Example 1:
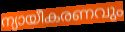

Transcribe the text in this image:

ന്യായീകരണവും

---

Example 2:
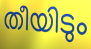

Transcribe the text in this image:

തീയിടും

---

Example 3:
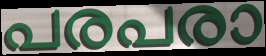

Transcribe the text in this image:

പരപരാ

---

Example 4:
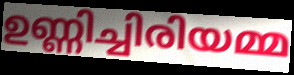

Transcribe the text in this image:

ഉണ്ണിച്ചിരിയമ്മ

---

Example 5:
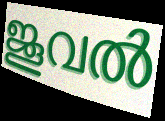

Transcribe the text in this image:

ജൂവൽ